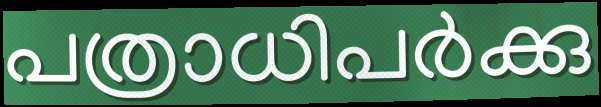
പത്രാധിപർക്കു